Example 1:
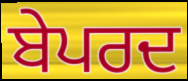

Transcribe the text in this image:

ਬੇਪਰਦ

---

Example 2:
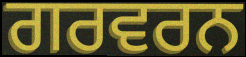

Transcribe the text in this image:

ਗਰਵਰਨ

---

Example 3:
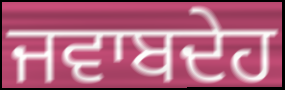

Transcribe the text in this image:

ਜਵਾਬਦੇਹ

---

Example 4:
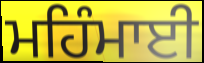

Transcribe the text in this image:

ਮਹਿੰਮਾਈ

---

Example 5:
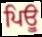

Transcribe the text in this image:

ਪਿਊ